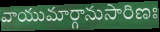
వాయుమార్గానుసారిణః